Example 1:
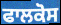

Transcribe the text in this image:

ਫਾਲਕੋਸ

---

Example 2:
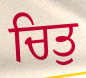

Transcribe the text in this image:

ਚਿਤੁ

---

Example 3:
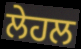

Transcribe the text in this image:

ਲੇਹਲ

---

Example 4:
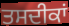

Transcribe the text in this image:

ਤਸਦੀਕਾਂ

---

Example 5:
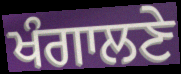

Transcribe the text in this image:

ਖੰਗਾਲਣੇ